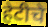
हेटीचे